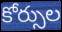
కోర్సుల